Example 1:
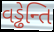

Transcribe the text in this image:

વડ્ઢેન્તિ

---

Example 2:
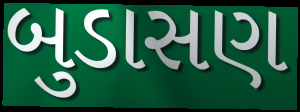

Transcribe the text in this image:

બુડાસણ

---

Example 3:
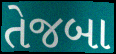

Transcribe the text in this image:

તેજબા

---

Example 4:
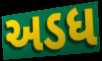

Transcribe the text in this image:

અડધ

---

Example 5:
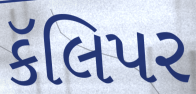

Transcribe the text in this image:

કૅલિપર